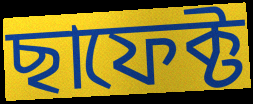
ছাফেক্ট